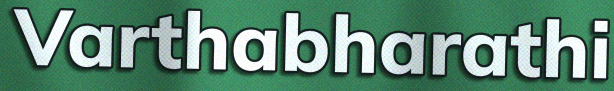
Varthabharathi